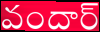
వందార్